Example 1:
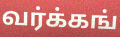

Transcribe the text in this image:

வர்க்கங்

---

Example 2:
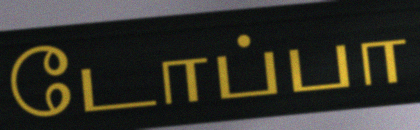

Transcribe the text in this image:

டோப்பா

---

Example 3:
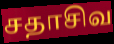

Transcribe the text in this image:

சதாசிவ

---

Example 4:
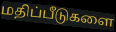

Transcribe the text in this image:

மதிப்பீடுகளை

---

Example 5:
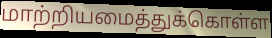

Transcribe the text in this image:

மாற்றியமைத்துக்கொள்ள